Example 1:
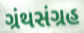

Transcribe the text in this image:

ગ્રંથસંગ્રહ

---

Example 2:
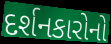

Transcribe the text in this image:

દર્શનકારોનો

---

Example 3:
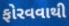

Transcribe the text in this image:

ફોરવવાથી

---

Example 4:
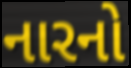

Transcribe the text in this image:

નારનો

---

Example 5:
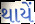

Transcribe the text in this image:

થાયેં